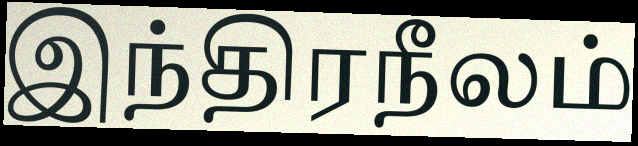
இந்திரநீலம்